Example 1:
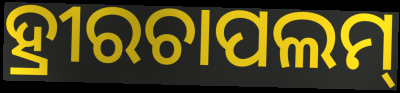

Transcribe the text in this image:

ହ୍ରୀରଚାପଲମ୍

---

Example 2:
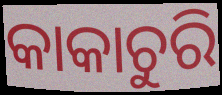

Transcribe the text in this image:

କାକାଚୁରି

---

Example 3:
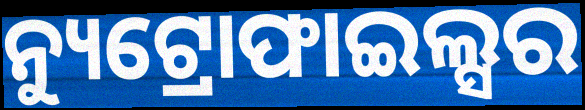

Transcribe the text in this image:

ନ୍ୟୁଟ୍ରୋଫାଇଲ୍ସର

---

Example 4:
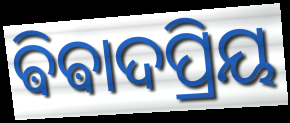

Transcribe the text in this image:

ଵିଵାଦପ୍ରିୟ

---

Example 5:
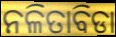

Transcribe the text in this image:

ନଳିତାବିଡା